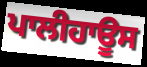
ਪਾਲੀਹਾਊਸ